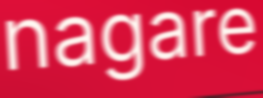
nagare